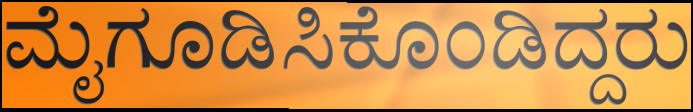
ಮೈಗೂಡಿಸಿಕೊಂಡಿದ್ದರು